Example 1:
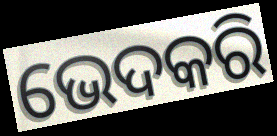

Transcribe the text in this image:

ଭେଦକରି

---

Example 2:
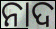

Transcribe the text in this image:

ନାଦ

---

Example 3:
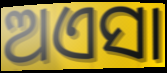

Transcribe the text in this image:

ଅଏସା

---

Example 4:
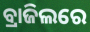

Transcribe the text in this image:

ବ୍ରାଜିଲରେ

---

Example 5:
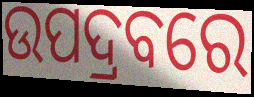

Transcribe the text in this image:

ଉପଦ୍ରବରେ